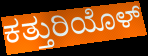
ಕತ್ತುರಿಯೊಳ್